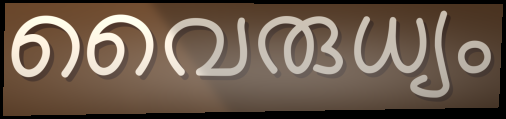
വൈരുധ്യം